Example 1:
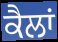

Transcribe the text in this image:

ਕੈਲਾਂ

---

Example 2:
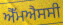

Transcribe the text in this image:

ਐੱਮਐਸਸੀ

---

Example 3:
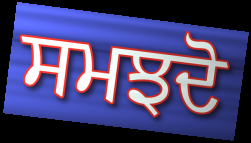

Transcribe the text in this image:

ਸਮਝਦੋ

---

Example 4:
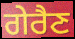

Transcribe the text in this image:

ਗੇਰੈਣ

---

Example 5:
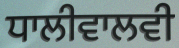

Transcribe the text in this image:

ਧਾਲੀਵਾਲਵੀ